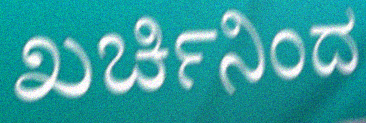
ಖರ್ಚಿನಿಂದ